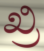
ಖ್ರಿ